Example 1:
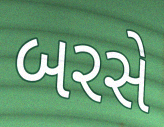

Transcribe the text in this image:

બરસે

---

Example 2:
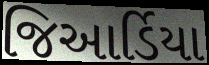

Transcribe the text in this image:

જિઆર્ડિયા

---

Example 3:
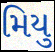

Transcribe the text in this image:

મિયુ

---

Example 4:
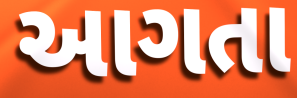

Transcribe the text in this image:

આગતા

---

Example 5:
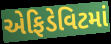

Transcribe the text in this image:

એફિડેવિટમાં